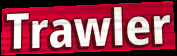
Trawler